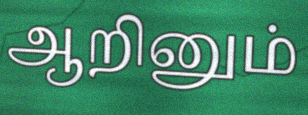
ஆறினும்